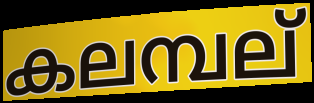
കലമ്പല്